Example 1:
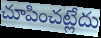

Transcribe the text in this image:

చూపించట్లేదు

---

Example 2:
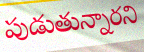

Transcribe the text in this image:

పుడుతున్నారని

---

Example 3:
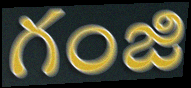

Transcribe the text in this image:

గంజి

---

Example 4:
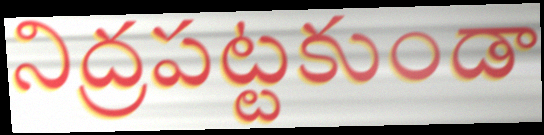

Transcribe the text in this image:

నిద్రపట్టకుండా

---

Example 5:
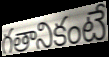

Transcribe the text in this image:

గతానికంటే